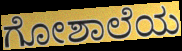
ಗೋಶಾಲೆಯ